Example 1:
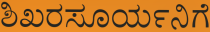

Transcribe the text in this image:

ಶಿಖರಸೂರ್ಯನಿಗೆ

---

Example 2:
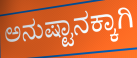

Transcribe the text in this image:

ಅನುಷ್ಟಾನಕ್ಕಾಗಿ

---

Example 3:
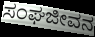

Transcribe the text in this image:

ಸಂಘಜೀವನ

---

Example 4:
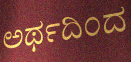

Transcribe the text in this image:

ಅರ್ಥದಿಂದ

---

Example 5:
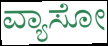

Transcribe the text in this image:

ವ್ಯಾಸೋ